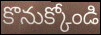
కొనుక్కోండి